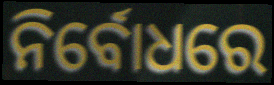
ନିର୍ବୋଧରେ